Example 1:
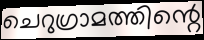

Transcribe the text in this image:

ചെറുഗ്രാമത്തിന്റെ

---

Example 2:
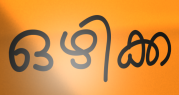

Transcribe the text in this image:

ഒഴിക്ക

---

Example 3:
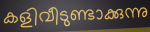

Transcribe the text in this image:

കളിവീടുണ്ടാക്കുന്നു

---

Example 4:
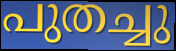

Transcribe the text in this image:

പുതച്ചു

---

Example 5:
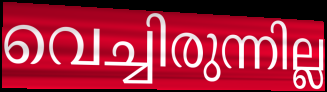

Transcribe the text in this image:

വെച്ചിരുന്നില്ല